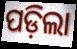
ପଡ଼ିଲା